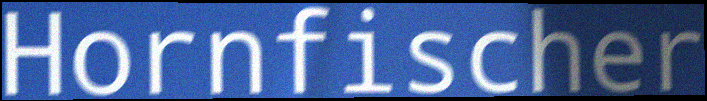
Hornfischer